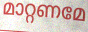
മാറ്റണമേ